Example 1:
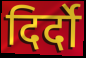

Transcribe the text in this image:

दिर्दो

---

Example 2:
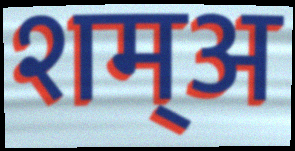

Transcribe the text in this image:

शम्अ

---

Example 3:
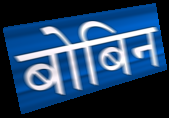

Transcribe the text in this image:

बोबिन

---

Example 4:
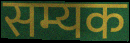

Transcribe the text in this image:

सम्यक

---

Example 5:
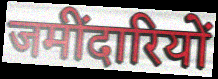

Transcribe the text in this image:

जमींदारियों